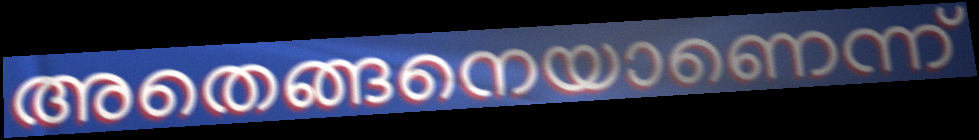
അതെങ്ങനെയാണെന്ന്